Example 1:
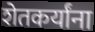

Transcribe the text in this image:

शेतकर्यांना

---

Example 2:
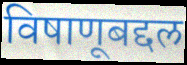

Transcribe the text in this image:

विषाणूबद्दल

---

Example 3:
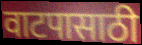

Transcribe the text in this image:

वाटपासाठी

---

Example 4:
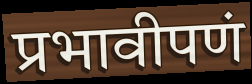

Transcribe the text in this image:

प्रभावीपणं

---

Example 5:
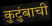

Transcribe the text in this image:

कुटुंबाची